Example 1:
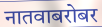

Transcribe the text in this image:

नातवाबरोबर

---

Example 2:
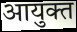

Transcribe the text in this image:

आयुक्‍त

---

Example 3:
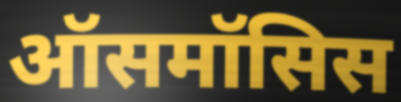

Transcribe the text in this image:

ऑसमॉसिस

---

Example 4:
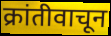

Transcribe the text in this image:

क्रांतीवाचून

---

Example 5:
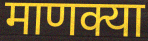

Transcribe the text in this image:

माणक्या